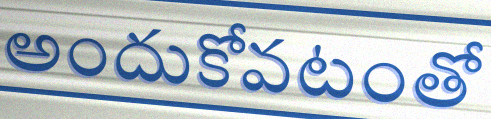
అందుకోవటంతో